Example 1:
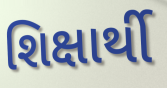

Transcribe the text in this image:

શિક્ષાર્થી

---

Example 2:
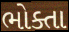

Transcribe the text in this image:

ભોક્તા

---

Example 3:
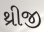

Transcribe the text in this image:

થ્રીજી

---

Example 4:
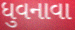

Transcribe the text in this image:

ધુવનાવા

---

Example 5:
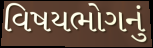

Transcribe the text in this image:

વિષયભોગનું